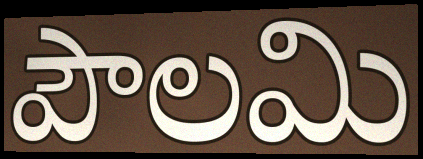
పౌలమి